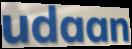
udaan